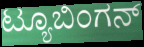
ಟ್ಯೂಬಿಂಗನ್